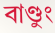
বাণ্ডুং